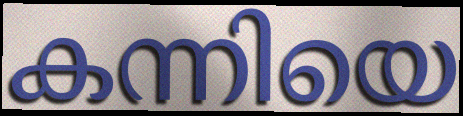
കന്നിയെ